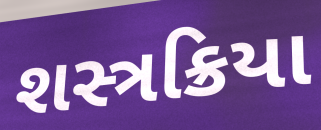
શસ્ત્રક્રિયા